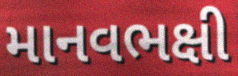
માનવભક્ષી